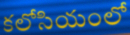
కలోసియంలో